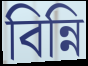
বিন্নি